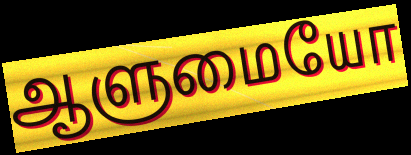
ஆளுமையோ